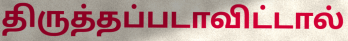
திருத்தப்படாவிட்டால்